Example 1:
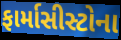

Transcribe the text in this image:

ફાર્માસીસ્ટોના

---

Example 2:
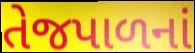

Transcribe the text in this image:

તેજપાળનાં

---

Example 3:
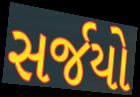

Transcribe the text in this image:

સર્જયો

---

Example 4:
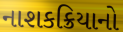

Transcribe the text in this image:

નાશકક્રિયાનો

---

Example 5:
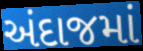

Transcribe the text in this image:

અંદાજમાં